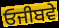
ਓਜੀਬਵੇ